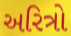
અરિત્રો